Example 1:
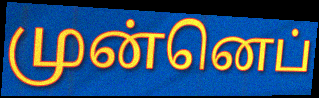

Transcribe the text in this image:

முன்னெப்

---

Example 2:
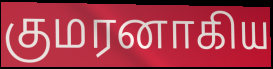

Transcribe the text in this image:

குமரனாகிய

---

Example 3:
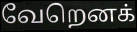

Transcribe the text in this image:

வேறெனக்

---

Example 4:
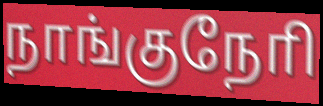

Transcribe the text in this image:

நாங்குநேரி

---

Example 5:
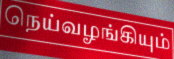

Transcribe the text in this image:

நெய்வழங்கியும்